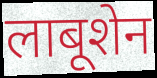
लाबूशेन